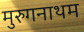
मुरुगनाथम